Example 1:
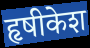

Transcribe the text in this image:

हृषीकेश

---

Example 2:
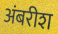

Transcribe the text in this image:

अंबरीश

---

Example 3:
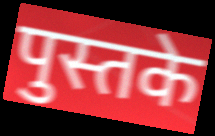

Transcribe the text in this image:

पुस्तके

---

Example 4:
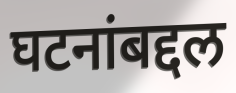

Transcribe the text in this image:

घटनांबद्दल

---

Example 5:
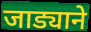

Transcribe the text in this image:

जाड्याने